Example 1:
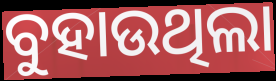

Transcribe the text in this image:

ବୁହାଉଥିଲା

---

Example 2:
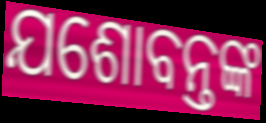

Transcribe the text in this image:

ଯଶୋବନ୍ତଙ୍କ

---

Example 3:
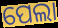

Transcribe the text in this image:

ପେଲା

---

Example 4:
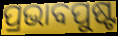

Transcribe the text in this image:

ପ୍ରଭାବପୁଷ୍ଟ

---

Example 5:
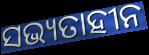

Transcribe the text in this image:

ସଭ୍ୟତାହୀନ